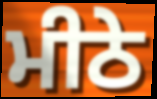
ਮੀਠੇ